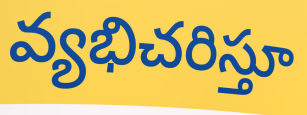
వ్యభిచరిస్తూ